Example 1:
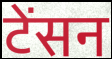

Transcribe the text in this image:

टेंसन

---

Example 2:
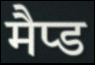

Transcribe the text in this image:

मैप्ड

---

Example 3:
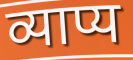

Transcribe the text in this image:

व्याप्य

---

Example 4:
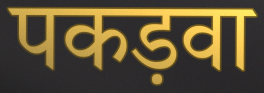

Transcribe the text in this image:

पकड़वा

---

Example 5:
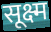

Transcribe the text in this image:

सूक्ष्‍म